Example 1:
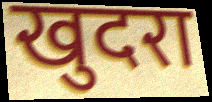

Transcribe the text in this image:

खुदरा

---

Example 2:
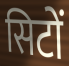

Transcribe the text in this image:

सिटों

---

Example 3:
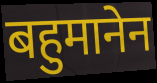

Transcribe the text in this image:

बहुमानेन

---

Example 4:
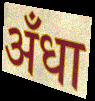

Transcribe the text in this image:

अँधा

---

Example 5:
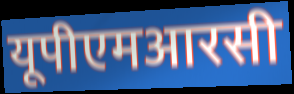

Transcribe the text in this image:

यूपीएमआरसी